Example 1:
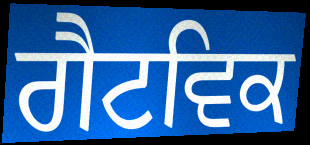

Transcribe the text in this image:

ਗੈਟਵਿਕ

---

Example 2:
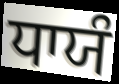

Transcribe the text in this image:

ਧਾਯੰ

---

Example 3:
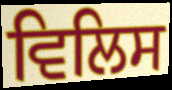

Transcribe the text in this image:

ਵਿਲਿਸ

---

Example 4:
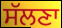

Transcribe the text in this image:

ਸੱਲਣਾ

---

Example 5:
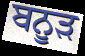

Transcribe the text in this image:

ਬਨੂੜ